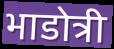
भाडोत्री